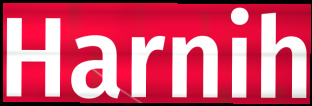
Harnih